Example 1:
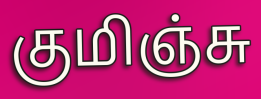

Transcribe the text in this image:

குமிஞ்சு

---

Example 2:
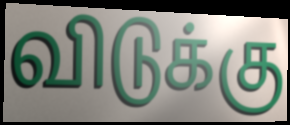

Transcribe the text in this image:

விடுக்கு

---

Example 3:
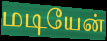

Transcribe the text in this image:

மடியேன்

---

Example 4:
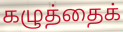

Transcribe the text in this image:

கழுத்தைக்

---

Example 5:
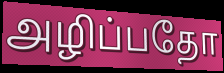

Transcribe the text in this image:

அழிப்பதோ